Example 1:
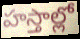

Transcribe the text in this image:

హస్తాల్లో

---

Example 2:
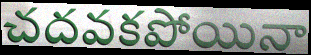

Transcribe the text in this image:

చదవకపోయినా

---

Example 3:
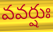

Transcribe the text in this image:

వవర్షుః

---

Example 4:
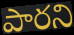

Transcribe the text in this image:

పారని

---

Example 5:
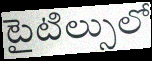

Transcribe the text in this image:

టైటిల్సులో